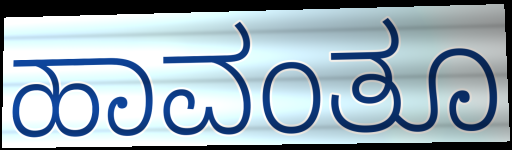
ಹಾವಂತೂ